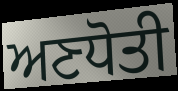
ਅਣਧੋਤੀ